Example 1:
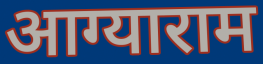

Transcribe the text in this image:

आग्याराम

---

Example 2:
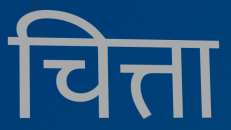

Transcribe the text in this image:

चित्ता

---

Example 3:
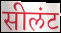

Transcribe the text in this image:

सीलंट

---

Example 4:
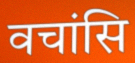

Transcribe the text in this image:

वचांसि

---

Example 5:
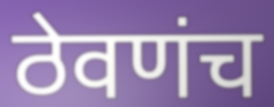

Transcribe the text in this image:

ठेवणंच